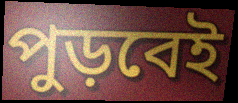
পুড়বেই